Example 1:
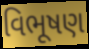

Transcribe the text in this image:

વિભૂષણ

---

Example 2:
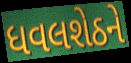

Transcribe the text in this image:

ધવલશેઠને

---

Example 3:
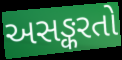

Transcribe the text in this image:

અસઙ્કરતો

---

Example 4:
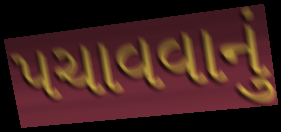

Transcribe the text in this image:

પચાવવાનું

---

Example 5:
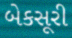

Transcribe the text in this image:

બેકસૂરી